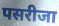
पसरीजा